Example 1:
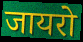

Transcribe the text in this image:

जायरो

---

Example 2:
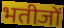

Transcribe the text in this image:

भतीजों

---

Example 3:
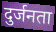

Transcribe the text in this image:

दुर्जनता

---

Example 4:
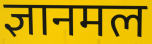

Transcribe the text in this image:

ज्ञानमल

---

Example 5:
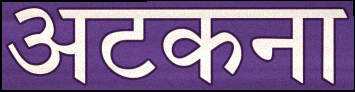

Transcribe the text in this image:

अटकना